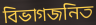
বিভাগজনিত